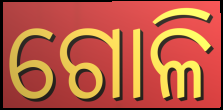
ଗୋଳି